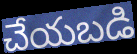
చేయబడి